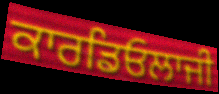
ਕਾਰਡਿਓਲਾਜੀ